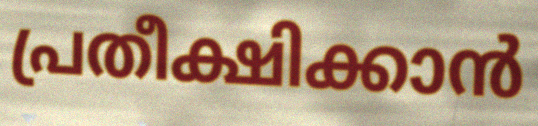
പ്രതീക്ഷിക്കാൻ